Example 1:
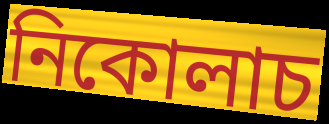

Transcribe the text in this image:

নিকোলাচ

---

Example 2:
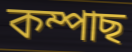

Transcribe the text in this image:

কম্পাছ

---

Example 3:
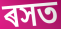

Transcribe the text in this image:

ৰসত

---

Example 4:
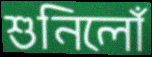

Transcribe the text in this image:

শুনিলোঁ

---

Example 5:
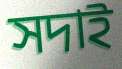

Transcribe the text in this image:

সদাই